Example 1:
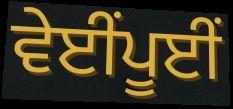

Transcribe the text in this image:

ਵੇਈਂਪੂਈਂ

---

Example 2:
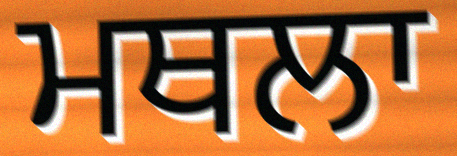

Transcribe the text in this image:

ਮਥਲਾ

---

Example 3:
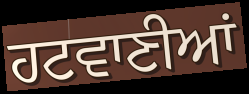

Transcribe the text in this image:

ਹਟਵਾਣੀਆਂ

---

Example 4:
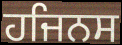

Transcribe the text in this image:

ਹਜਿਨਸ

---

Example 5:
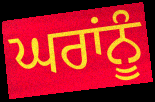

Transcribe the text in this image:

ਘਰਾਂਨੂੰ